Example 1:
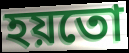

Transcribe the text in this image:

হয়তো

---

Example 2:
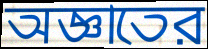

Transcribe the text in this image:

অজ্ঞাতের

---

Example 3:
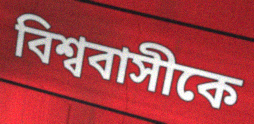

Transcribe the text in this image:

বিশ্ববাসীকে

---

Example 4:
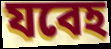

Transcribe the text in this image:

যবেহ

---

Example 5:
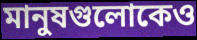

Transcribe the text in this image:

মানুষগুলোকেও